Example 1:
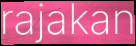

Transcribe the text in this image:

rajakan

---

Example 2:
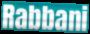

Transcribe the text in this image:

Rabbani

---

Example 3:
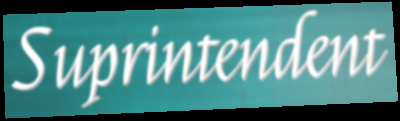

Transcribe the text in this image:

Suprintendent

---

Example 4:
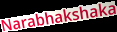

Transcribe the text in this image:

Narabhakshaka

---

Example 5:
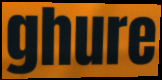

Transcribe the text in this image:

ghure